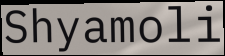
Shyamoli